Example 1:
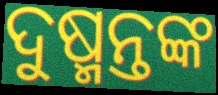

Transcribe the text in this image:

ଦୁଷ୍ମନ୍ତଙ୍କ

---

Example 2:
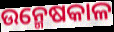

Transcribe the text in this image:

ଉନ୍ମେଷକାଳ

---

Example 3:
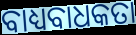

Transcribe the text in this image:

ବାଧ୍ୟବାଧକତା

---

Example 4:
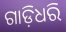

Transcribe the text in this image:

ଗାଡ଼ିଧରି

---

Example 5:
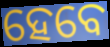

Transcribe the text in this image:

ହେବେ